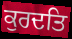
ਕੁਰਦਤਿ